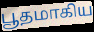
பூதமாகிய